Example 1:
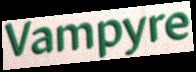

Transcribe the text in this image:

Vampyre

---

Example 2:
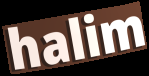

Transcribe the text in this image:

halim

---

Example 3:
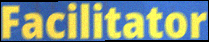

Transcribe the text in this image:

Facilitator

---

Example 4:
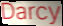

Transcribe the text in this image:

Darcy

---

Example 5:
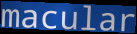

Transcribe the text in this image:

macular